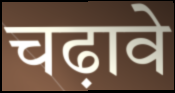
चढ़ावे